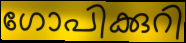
ഗോപിക്കുറി